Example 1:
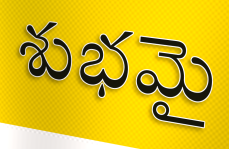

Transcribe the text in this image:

శుభమై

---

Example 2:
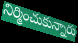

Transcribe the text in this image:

నిర్మించుకున్నారు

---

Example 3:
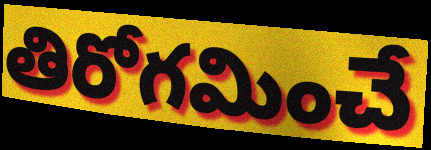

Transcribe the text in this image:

తిరోగమించే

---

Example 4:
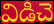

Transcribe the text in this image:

విడిచె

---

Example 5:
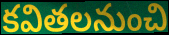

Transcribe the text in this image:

కవితలనుంచి